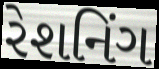
રેશનિંગ